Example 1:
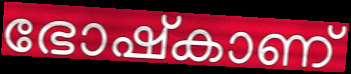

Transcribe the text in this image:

ഭോഷ്കാണ്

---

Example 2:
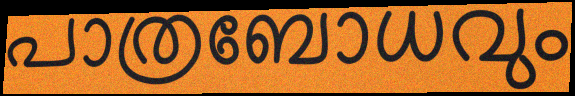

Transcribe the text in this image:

പാത്രബോധവും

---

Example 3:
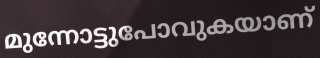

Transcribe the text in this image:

മുന്നോട്ടുപോവുകയാണ്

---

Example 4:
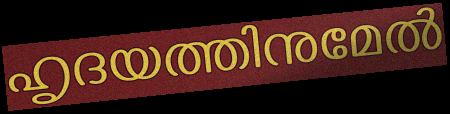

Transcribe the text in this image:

ഹൃദയത്തിനുമേൽ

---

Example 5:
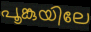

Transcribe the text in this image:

പൂങ്കുയിലേ